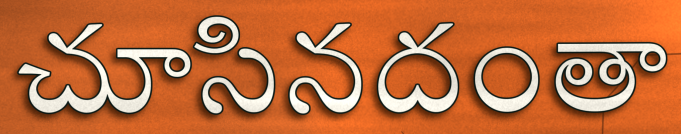
చూసినదంతా